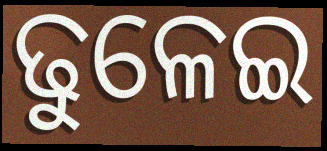
ଢୁଳେଇ